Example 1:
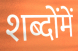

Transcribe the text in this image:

शब्दोंमें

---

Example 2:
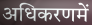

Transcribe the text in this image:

अधिकरणमें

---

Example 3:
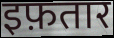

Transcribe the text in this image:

इफ़तार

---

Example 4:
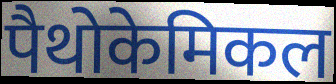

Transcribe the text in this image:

पैथोकेमिकल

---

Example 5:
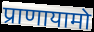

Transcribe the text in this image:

प्राणायामो